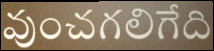
వుంచగలిగేది